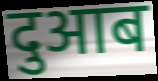
दुआब